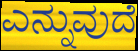
ಎನ್ನುವುದೆ